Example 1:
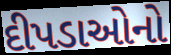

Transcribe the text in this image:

દીપડાઓનો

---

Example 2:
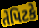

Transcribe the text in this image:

તેપિટકે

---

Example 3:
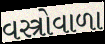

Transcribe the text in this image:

વસ્ત્રોવાળા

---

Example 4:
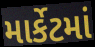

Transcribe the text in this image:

માર્કેટમાં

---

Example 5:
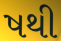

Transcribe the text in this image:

ષથી